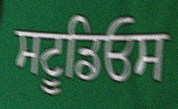
ਸਟੂਡਿਓਸ